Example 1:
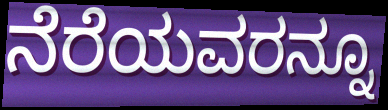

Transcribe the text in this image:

ನೆರೆಯವರನ್ನೂ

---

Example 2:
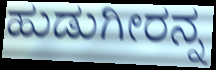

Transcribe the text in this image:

ಹುಡುಗೀರನ್ನ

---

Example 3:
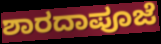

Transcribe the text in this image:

ಶಾರದಾಪೂಜೆ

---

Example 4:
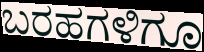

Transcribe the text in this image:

ಬರಹಗಳಿಗೂ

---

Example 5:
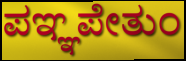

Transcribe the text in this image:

ಪಞ್ಞಪೇತುಂ